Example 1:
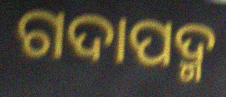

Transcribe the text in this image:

ଗଦାପଦ୍ମ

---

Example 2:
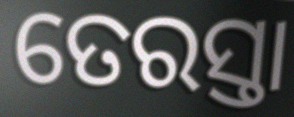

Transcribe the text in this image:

ତେରସ୍ତା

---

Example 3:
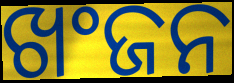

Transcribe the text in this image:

ଖଂଜନ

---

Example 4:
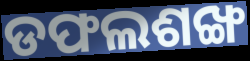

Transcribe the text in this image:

ଡଫଲଶଙ୍ଖ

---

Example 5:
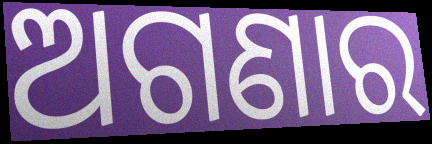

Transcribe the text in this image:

ଅଗଣାର